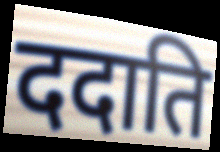
ददाति